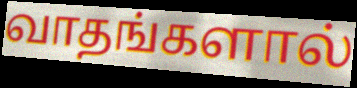
வாதங்களால்